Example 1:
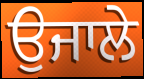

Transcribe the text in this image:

ਉਜਾਲੇ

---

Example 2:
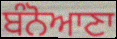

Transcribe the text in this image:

ਬੰਨੋਆਣਾ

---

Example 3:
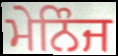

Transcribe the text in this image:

ਮੇਨਿੰਜ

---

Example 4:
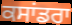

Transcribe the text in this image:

ਕਸਾਂਡਰਾ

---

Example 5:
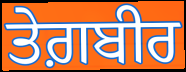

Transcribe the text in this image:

ਤੇਗ਼ਬੀਰ